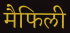
मैफिली